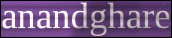
anandghare